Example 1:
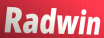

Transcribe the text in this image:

Radwin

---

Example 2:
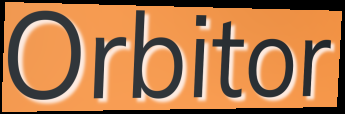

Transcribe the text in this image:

Orbitor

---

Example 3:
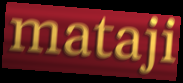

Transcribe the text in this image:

mataji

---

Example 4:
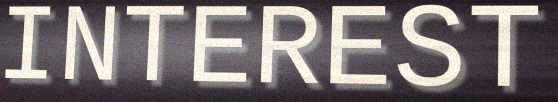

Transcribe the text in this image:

INTEREST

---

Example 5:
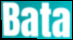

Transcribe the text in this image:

Bata